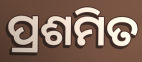
ପ୍ରଶମିତ